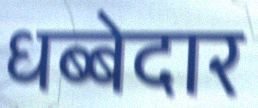
धब्बेदार